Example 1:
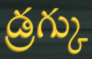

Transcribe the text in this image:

డ్రగ్కు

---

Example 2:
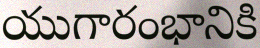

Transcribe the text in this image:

యుగారంభానికి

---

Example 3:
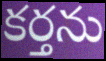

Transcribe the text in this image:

కర్తను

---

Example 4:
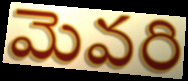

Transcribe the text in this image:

మెవరి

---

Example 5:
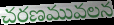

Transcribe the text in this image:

చరణమువలన